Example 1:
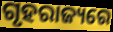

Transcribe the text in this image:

ଗୃହରାଜ୍ୟରେ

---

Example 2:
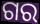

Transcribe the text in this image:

ଗର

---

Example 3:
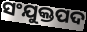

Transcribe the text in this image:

ସଂଯୁକ୍ତପଦ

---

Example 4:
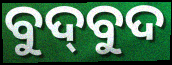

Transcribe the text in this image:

ବୁଦ୍‌ବୁଦ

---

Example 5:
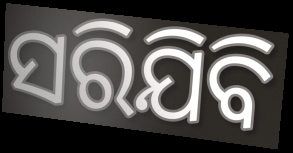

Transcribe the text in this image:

ସରିଯିବି